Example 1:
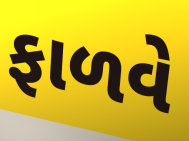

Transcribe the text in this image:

ફાળવે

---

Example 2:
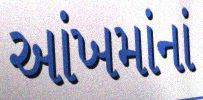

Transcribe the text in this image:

આંખમાંનાં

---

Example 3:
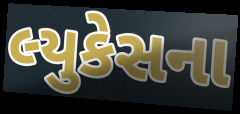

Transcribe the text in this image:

લ્યુકેસના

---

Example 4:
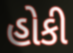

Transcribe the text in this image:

હોકી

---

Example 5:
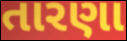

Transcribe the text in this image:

તારણા